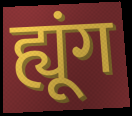
ह्यूंग